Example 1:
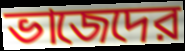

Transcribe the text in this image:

ভাজেদের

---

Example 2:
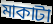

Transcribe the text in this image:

মাকাটা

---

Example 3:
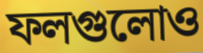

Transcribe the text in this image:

ফলগুলোও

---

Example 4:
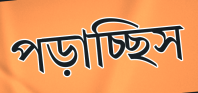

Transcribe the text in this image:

পড়াচ্ছিস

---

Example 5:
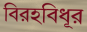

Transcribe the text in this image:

বিরহবিধূর